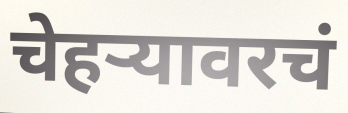
चेहऱ्यावरचं